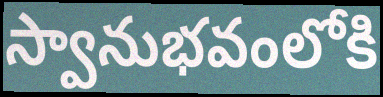
స్వానుభవంలోకి